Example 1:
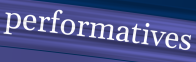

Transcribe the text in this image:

performatives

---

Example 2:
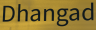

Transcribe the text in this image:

Dhangad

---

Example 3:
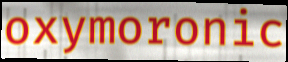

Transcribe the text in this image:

oxymoronic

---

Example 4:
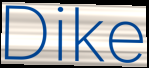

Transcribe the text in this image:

Dike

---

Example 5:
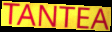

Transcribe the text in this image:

TANTEA